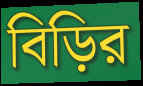
বিড়ির